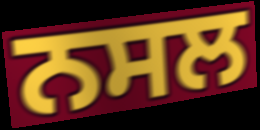
ਨਸਲ